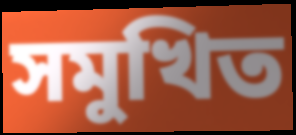
সমুখিত